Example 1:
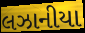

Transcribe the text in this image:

લઝાનીયા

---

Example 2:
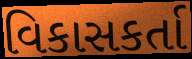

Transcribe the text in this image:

વિકાસકર્તા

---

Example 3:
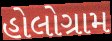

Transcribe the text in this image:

હોલોગ્રામ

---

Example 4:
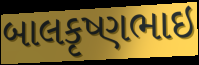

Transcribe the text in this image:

બાલકૃષ્ણભાઇ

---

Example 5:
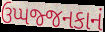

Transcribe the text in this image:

ઉપ્પજ્જનકાનં